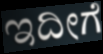
ಇದೀಗೆ